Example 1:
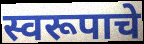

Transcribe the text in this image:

स्वरूपाचे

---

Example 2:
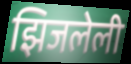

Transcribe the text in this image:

झिजलेली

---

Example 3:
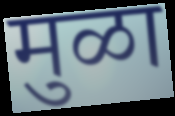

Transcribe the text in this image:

मुळा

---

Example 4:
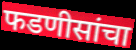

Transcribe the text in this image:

फडणीसांचा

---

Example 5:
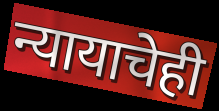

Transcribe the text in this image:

न्यायाचेही